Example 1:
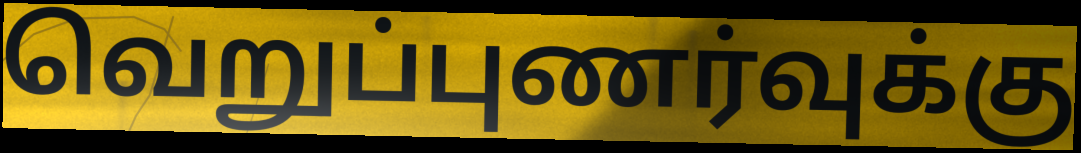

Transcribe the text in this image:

வெறுப்புணர்வுக்கு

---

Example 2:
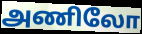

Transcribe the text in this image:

அணிலோ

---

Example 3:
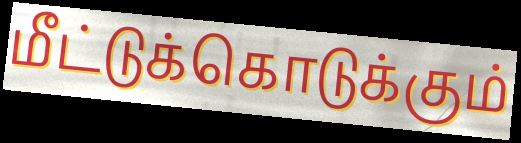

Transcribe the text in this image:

மீட்டுக்கொடுக்கும்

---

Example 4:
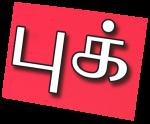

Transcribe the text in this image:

புக்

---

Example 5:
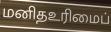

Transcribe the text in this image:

மனிதஉரிமைப்